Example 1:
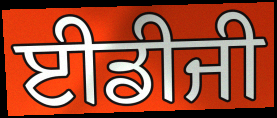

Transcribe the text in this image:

ਈਡੀਜੀ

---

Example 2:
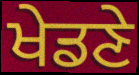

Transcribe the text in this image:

ਖੇਡਣੇ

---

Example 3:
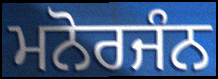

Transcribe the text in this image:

ਮਨੋਰਜੰਨ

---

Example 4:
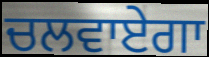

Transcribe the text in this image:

ਚਲਵਾਏਗਾ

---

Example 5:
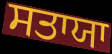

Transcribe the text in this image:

ਸਤਾਯਾ